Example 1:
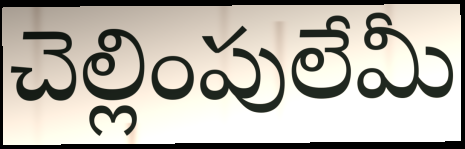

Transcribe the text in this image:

చెల్లింపులేమీ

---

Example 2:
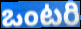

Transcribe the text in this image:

ఒంటరి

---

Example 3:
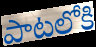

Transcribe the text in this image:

పాటలోకి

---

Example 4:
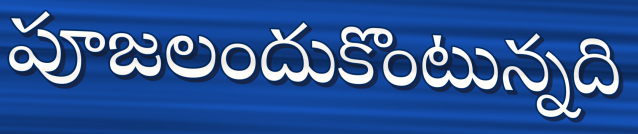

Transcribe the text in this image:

పూజలందుకొంటున్నది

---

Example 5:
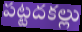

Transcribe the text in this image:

పట్టదకల్లు